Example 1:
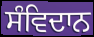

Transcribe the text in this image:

ਸੰਵਿਦਾਨ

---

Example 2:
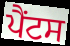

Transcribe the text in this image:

ਪੈਂਟਸ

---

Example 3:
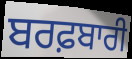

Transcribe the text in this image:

ਬਰਫ਼ਬਾਰੀ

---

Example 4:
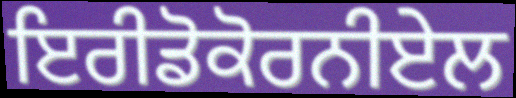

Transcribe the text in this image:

ਇਰੀਡੋਕੋਰਨੀਏਲ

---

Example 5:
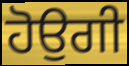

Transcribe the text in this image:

ਹੋਉਗੀ